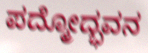
ಪದ್ಮೋದ್ಭವನ